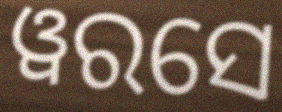
ୱରସେ